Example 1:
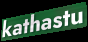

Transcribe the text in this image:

kathastu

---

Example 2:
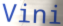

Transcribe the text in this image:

Vini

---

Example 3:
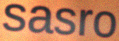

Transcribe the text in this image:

sasro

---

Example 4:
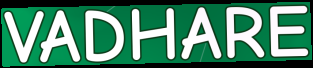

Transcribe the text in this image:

VADHARE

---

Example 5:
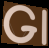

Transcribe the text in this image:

Gl